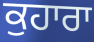
ਕੁਹਾਰਾ